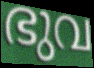
ഭുവ